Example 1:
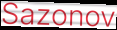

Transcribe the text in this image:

Sazonov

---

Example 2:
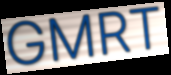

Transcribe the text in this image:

GMRT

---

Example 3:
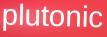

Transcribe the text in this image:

plutonic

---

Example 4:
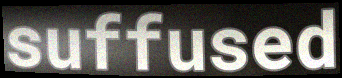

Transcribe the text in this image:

suffused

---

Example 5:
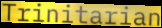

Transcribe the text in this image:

Trinitarian